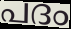
പദം